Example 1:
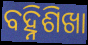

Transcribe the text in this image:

ବହ୍ନିଶିଖା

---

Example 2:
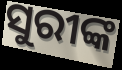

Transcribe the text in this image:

ସୁରୀଙ୍କ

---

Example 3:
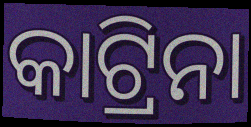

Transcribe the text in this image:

କାଟ୍ରିନା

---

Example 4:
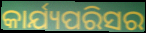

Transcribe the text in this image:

କାର୍ଯ୍ୟପରିସର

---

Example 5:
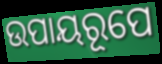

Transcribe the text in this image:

ଉପାୟରୂପେ